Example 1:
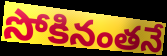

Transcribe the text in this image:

సోకినంతనే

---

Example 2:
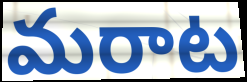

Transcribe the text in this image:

మరాట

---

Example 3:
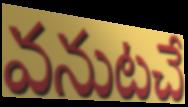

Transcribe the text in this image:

వనుటచే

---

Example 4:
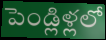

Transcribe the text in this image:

పెండ్లిళ్లలో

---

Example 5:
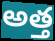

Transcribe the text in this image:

అత్త